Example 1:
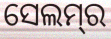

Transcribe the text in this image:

ସେଲମ୍‌ର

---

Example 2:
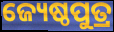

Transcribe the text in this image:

ଜ୍ୟେଷ୍ଠପୁତ୍ର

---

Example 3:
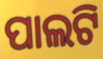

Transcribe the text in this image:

ପାଲଟି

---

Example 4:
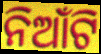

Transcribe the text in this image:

ନିଆଁଟି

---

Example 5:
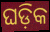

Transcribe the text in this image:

ଘଡ଼ିକ